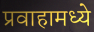
प्रवाहामध्ये